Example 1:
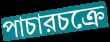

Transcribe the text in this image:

পাচারচক্রে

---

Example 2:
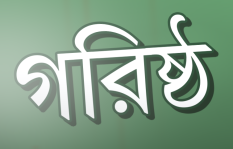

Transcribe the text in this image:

গরিষ্ঠ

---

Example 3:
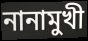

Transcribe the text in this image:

নানামুখী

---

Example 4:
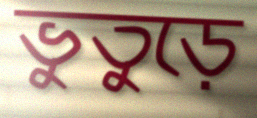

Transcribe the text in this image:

ভুতুড়ে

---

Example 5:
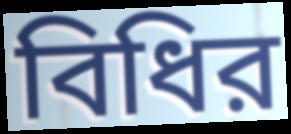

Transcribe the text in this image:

বিধির